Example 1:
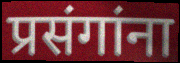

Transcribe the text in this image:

प्रसंगांना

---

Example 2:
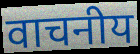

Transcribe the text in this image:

वाचनीय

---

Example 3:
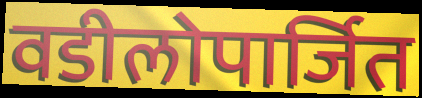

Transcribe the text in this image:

वडीलोपार्जित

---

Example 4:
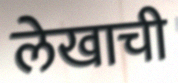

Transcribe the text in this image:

लेखाची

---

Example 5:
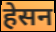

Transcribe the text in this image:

हेसन